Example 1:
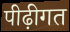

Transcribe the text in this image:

पीढ़ीगत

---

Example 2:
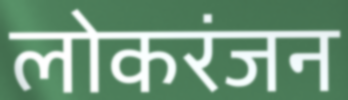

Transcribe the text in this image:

लोकरंजन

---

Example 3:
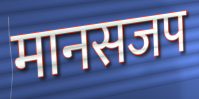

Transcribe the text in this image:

मानसजप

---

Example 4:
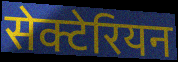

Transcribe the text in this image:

सेक्टेरियन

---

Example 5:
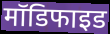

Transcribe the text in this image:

मॉडिफाइड